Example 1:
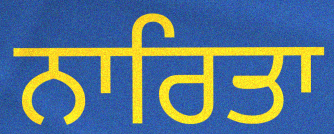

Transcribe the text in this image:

ਨਾਰਿਤਾ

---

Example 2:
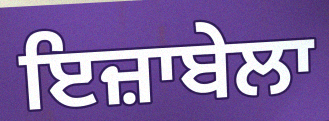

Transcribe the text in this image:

ਇਜ਼ਾਬੇਲਾ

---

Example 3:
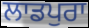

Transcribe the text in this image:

ਲਾਡਪੁਰਾ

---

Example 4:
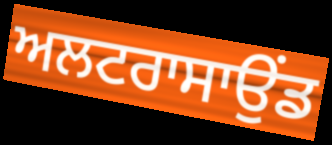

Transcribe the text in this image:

ਅਲਟਰਾਸਾਉਂਡ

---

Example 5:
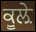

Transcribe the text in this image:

ਕੂਲ਼ੇ